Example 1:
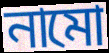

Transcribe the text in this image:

নামো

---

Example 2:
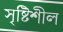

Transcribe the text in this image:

সৃষ্টিশীল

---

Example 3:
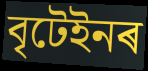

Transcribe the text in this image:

বৃটেইনৰ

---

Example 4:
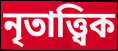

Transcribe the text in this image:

নৃতাত্ত্বিক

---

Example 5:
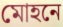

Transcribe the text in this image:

মোহনে